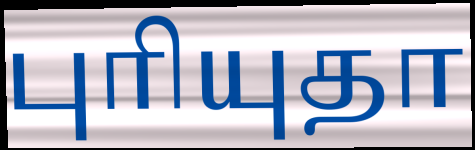
புரியுதா